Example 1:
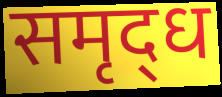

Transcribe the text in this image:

समृद्ध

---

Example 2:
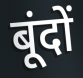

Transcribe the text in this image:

बूंदों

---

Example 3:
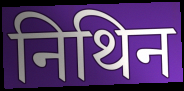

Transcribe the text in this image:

निथिन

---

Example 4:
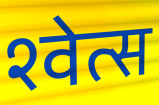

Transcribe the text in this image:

श्वेत्स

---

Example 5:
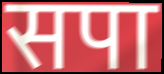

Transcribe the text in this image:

सपा